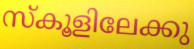
സ്കൂളിലേക്കു